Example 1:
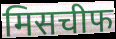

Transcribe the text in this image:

मिसचीफ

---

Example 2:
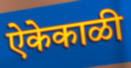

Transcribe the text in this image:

ऐकेकाळी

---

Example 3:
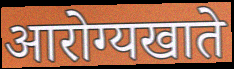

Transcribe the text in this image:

आरोग्यखाते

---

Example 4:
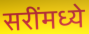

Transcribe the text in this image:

सरींमध्ये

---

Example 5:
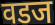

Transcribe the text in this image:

वडज